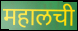
महालची